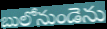
బులోనుండెను